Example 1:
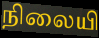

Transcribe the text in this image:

நிலையி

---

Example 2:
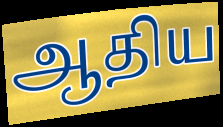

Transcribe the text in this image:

ஆதிய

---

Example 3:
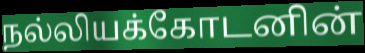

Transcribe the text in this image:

நல்லியக்கோடனின்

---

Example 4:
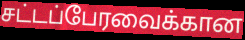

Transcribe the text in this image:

சட்டப்பேரவைக்கான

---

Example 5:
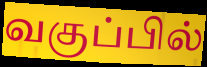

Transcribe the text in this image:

வகுப்பில்